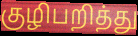
குழிபறித்து